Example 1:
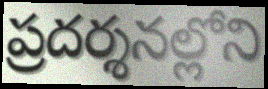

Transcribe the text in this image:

ప్రదర్శనల్లోని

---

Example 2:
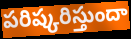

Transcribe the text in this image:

పరిష్కరిస్తుందా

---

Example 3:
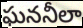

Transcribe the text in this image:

ఘననీలా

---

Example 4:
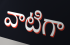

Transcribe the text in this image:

వాటిగా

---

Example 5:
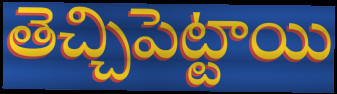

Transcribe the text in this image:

తెచ్చిపెట్టాయి